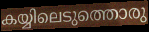
കയ്യിലെടുത്തൊരു